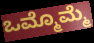
ಒಮ್ಮೊಮ್ಮೆ